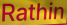
Rathin